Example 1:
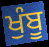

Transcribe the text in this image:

ਖੁੰਬੂ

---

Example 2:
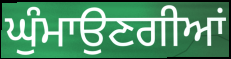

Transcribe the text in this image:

ਘੁੰਮਾਉਣਗੀਆਂ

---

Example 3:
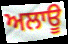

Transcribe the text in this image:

ਅਲਾਊ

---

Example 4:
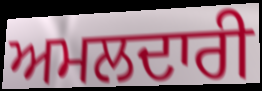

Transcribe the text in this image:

ਅਮਲਦਾਰੀ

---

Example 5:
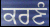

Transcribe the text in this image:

ਕਰਣੰ